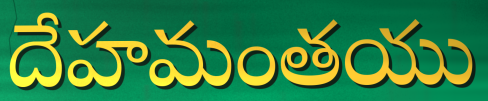
దేహమంతయు